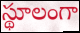
స్థూలంగా